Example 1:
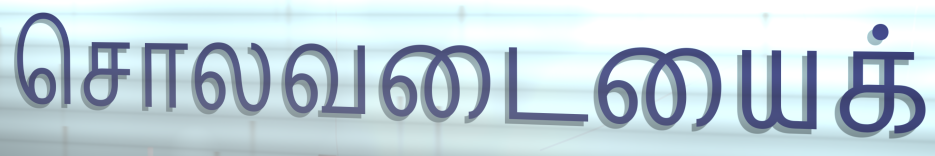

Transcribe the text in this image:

சொலவடையைக்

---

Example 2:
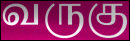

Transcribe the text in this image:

வருகு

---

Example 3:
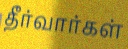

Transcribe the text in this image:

தீர்வார்கள்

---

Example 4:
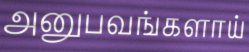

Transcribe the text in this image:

அனுபவங்களாய்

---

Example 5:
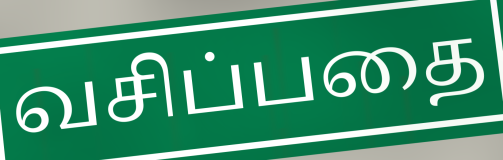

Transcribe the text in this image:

வசிப்பதை